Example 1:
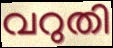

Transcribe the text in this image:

വറുതി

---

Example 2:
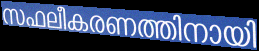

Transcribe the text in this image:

സഫലീകരണത്തിനായി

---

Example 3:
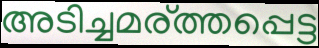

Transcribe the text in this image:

അടിച്ചമര്ത്തപ്പെട്ട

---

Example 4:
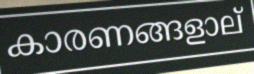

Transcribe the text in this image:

കാരണങ്ങളാല്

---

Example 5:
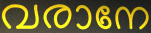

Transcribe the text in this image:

വരാനേ